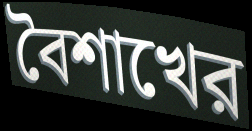
বৈশাখের